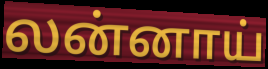
லன்னாய்